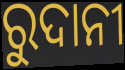
ରୁଦାନୀ